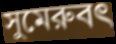
সুমেরুবৎ